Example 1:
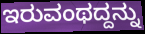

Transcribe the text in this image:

ಇರುವಂಥದ್ದನ್ನು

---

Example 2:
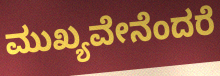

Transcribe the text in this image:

ಮುಖ್ಯವೇನೆಂದರೆ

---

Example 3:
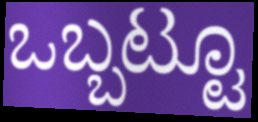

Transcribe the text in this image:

ಒಬ್ಬಟ್ಟೂ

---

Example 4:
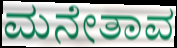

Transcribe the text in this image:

ಮನೇತಾವ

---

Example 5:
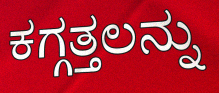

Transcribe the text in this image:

ಕಗ್ಗತ್ತಲನ್ನು